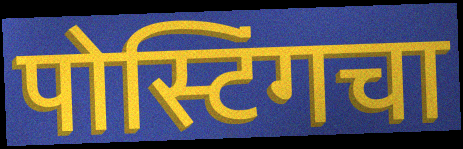
पोस्टिंगचा